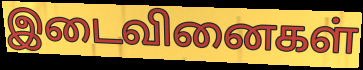
இடைவினைகள்